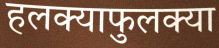
हलक्याफुलक्या